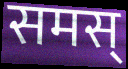
समस्